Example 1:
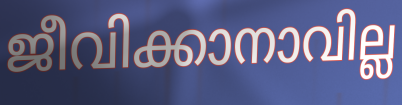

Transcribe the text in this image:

ജീവിക്കാനാവില്ല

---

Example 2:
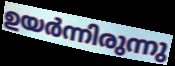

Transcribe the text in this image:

ഉയർന്നിരുന്നു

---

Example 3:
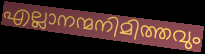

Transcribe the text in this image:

എല്ലാനന്മനിമിത്തവും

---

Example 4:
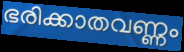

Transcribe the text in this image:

ഭരിക്കാതവണ്ണം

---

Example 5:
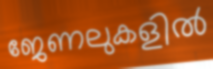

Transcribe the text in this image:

ജേണലുകളിൽ